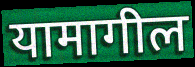
यामागील